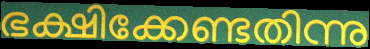
ഭക്ഷിക്കേണ്ടതിന്നു